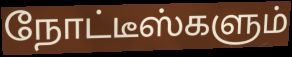
நோட்டீஸ்களும்